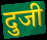
दुजी